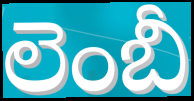
లెంబీ